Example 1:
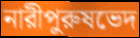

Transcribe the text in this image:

নারীপুরুষভেদ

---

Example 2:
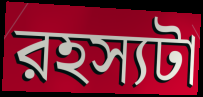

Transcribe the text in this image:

রহস্যটা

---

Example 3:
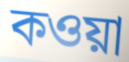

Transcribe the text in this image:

কওয়া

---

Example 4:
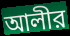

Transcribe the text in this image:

আলীর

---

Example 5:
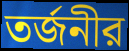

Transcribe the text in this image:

তর্জনীর